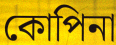
কোপিনা